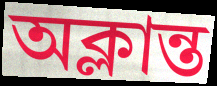
অক্লান্ত